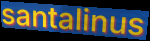
santalinus